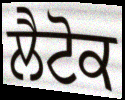
ਲੈਟੋਕ